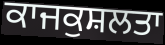
ਕਾਜਕੁਸ਼ਲਤਾ